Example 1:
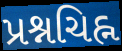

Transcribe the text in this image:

પ્રશ્નચિહ્ન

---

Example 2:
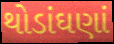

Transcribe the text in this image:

થોડાંઘણાં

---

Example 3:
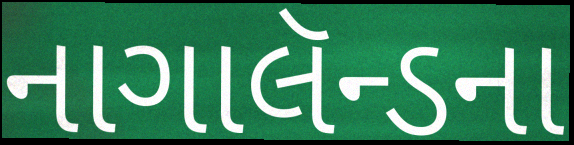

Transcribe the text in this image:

નાગાલૅન્ડના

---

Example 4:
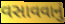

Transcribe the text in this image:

વસાવવાનું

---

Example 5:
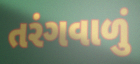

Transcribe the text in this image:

તરંગવાળું